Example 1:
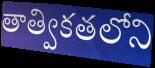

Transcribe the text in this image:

తాత్వికతలోని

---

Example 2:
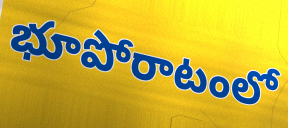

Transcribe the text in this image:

భూపోరాటంలో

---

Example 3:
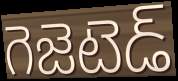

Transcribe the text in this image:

గెజెటెడ్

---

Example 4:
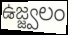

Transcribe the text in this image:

ఉజ్జ్వలం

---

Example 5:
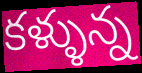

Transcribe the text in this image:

కళ్ళున్న